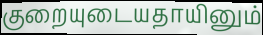
குறையுடையதாயினும்